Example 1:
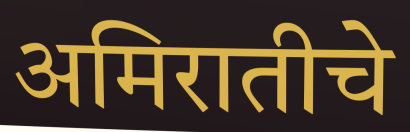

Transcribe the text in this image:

अमिरातीचे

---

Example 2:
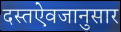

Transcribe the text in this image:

दस्तऐवजानुसार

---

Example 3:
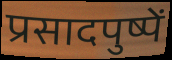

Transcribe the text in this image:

प्रसादपुष्पें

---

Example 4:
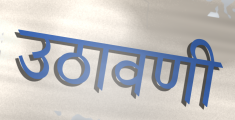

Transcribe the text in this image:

उठावणी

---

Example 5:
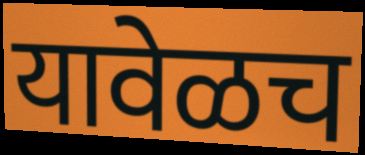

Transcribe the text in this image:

यावेळच